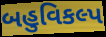
બહુવિકલ્પ